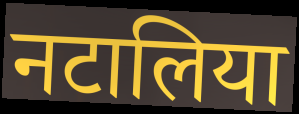
नटालिया